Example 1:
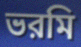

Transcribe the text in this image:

ভরমি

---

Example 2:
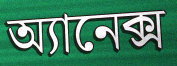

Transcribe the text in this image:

অ্যানেক্স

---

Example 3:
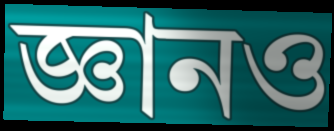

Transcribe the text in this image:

জ্ঞানও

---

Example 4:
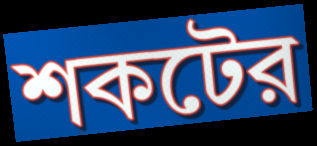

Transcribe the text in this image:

শকটের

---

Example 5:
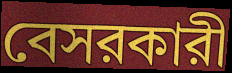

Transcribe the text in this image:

বেসরকারী